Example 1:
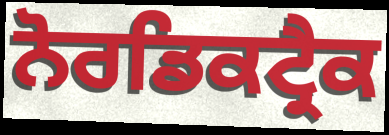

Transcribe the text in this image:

ਨੋਰਡਿਕਟ੍ਰੈਕ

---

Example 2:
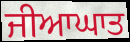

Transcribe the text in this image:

ਜੀਆਘਾਤ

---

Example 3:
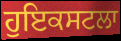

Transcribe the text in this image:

ਹੁਇਕਸਟਲਾ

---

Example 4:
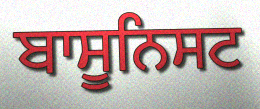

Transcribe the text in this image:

ਬਾਸੂਨਿਸਟ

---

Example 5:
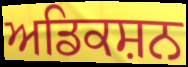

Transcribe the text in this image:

ਅਡਿਕਸ਼ਨ